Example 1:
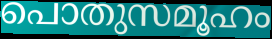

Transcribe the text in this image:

പൊതുസമൂഹം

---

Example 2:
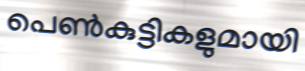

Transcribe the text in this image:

പെൺകുട്ടികളുമായി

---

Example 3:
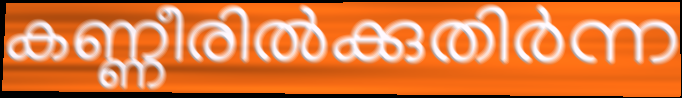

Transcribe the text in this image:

കണ്ണീരിൽക്കുതിർന്ന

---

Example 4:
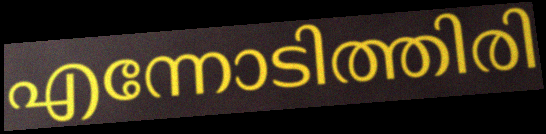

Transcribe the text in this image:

എന്നോടിത്തിരി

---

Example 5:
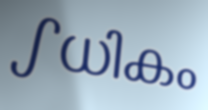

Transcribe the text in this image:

ഽധികം